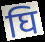
घि